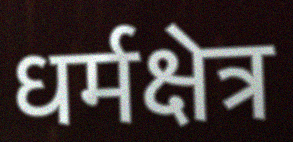
धर्मक्षेत्र